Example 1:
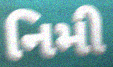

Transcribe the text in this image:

નિમી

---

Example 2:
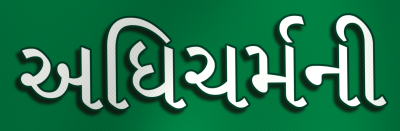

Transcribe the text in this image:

અધિચર્મની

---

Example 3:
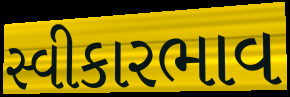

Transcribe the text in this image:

સ્વીકારભાવ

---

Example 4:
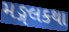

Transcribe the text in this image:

મઙ્ગલકથા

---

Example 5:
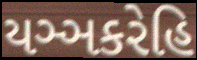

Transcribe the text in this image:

યઞ્ઞકરેહિ